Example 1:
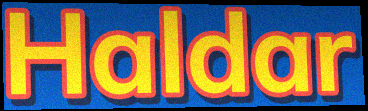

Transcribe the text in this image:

Haldar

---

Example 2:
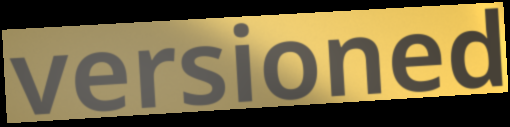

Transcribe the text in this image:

versioned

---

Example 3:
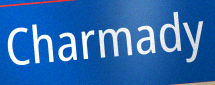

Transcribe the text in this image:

Charmady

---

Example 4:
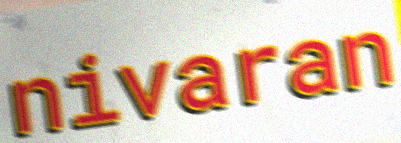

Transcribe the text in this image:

nivaran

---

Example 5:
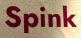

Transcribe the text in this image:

Spink